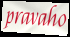
pravaho